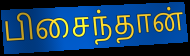
பிசைந்தான்